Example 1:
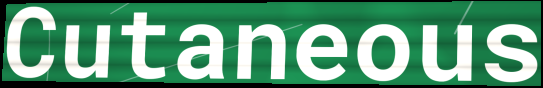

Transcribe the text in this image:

Cutaneous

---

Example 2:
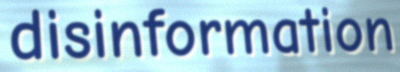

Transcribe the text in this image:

disinformation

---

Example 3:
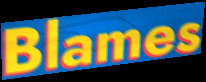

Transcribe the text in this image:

Blames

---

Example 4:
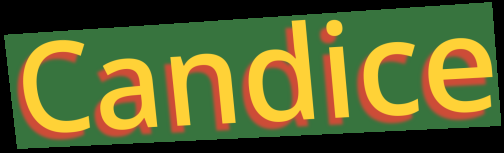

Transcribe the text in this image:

Candice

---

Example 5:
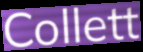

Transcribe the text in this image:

Collett